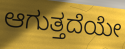
ಆಗುತ್ತದೆಯೇ